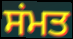
ਸਂਮਤ